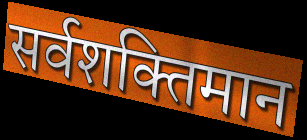
सर्वशक्‍तिमान